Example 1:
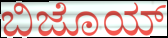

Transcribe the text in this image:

ಬಿಜೊಯ್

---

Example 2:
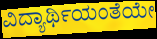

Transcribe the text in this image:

ವಿದ್ಯಾರ್ಥಿಯಂತೆಯೇ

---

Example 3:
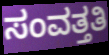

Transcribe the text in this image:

ಸಂವತ್ತತಿ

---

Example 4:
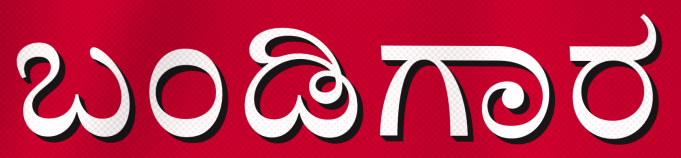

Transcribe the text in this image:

ಬಂಡಿಗಾರ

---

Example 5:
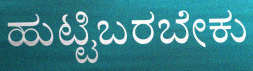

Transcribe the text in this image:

ಹುಟ್ಟಿಬರಬೇಕು